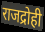
राजद्रोही